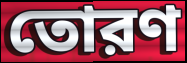
তোরণ